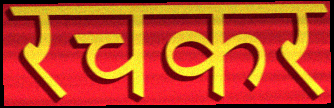
रचकर